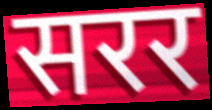
सरर